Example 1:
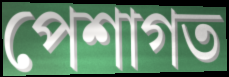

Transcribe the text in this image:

পেশাগত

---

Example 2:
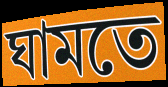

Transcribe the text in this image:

ঘামতে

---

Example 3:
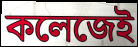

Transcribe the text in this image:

কলেজেই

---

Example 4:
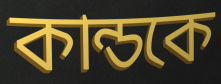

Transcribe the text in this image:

কান্ডকে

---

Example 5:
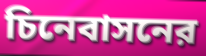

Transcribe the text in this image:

চিনেবাসনের